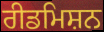
ਰੀਡਮਿਸ਼ਨ